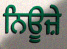
ਨਿਊਜ਼ੇ